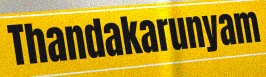
Thandakarunyam